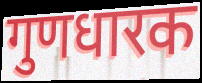
गुणधारक